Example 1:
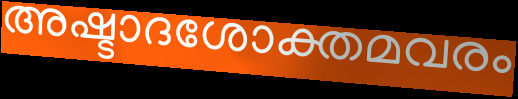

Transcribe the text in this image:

അഷ്ടാദശോക്തമവരം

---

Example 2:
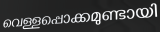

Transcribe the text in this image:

വെള്ളപ്പൊക്കമുണ്ടായി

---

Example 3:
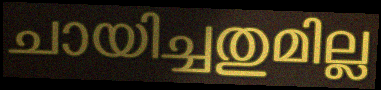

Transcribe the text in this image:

ചായിച്ചതുമില്ല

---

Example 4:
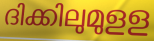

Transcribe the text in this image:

ദിക്കിലുമുളള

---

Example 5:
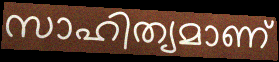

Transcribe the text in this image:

സാഹിത്യമാണ്